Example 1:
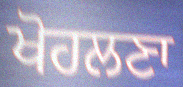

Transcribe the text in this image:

ਖੋਹਲਣਾ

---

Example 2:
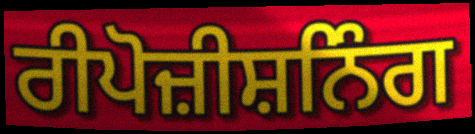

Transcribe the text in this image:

ਰੀਪੋਜ਼ੀਸ਼ਨਿੰਗ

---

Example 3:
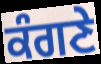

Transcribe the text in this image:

ਕੰਗਣੇ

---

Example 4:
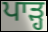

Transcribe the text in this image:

ਪਾੜ੍ਹ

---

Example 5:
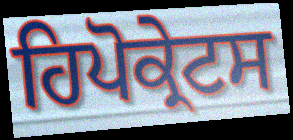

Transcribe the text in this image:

ਹਿਪੋਕ੍ਰੇਟਸ